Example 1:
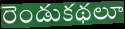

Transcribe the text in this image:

రెండుకథలూ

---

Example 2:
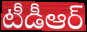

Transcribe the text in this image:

టీడీఆర్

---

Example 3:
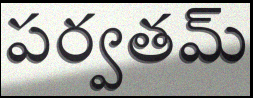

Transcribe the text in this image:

పర్వతమ్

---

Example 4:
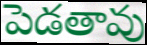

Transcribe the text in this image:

పెడతావు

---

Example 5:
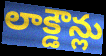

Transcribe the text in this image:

లాక్డౌన్లు